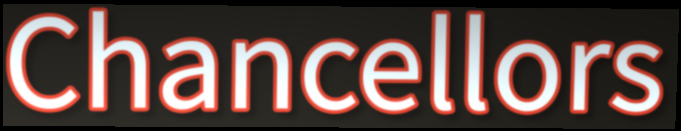
Chancellors